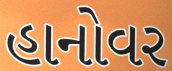
હાનોવર